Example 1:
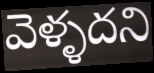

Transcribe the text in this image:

వెళ్ళదని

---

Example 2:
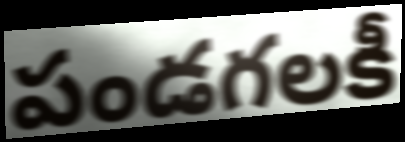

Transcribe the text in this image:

పండగలకీ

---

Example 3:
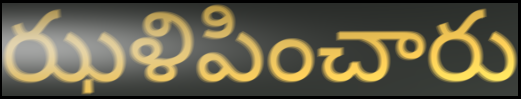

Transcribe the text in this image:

ఝళిపించారు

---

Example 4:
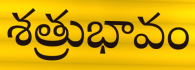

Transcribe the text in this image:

శత్రుభావం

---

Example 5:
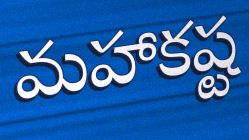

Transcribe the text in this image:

మహాకష్ట